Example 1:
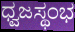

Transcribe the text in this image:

ಧ್ವಜಸ್ಥಂಭ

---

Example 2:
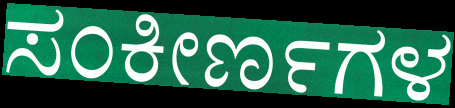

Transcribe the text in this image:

ಸಂಕೀರ್ಣಗಳ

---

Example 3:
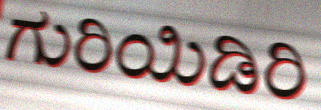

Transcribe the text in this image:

ಗುರಿಯಿಡಿರಿ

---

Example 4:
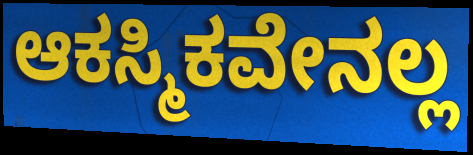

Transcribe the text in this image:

ಆಕಸ್ಮಿಕವೇನಲ್ಲ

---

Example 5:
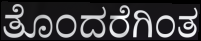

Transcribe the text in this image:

ತೊಂದರೆಗಿಂತ